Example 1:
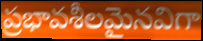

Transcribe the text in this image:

ప్రభావశీలమైనవిగా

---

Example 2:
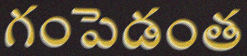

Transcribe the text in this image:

గంపెడంత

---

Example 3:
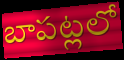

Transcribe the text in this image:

బాపట్లలో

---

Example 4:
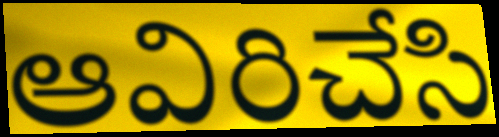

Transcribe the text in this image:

ఆవిరిచేసి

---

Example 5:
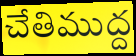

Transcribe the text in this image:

చేతిముద్ద